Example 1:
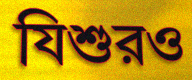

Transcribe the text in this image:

যিশুরও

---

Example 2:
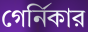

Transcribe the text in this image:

গের্নিকার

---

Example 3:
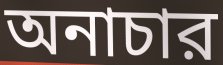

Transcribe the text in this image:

অনাচার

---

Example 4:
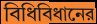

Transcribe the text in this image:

বিধিবিধানের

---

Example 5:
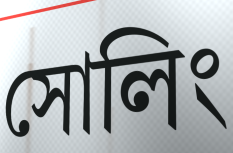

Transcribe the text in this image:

সোলিং